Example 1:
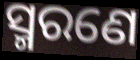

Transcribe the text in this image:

ସ୍ମରଣେ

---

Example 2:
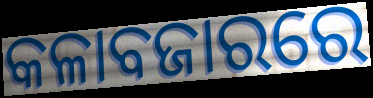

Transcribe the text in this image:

କଳାବଜାରରେ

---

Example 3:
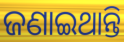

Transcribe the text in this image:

ଜଣାଇଥାନ୍ତି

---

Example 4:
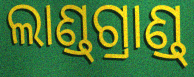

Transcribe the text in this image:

ଲାଣ୍ଡ୍‍ଗ୍ରାଣ୍ଡ୍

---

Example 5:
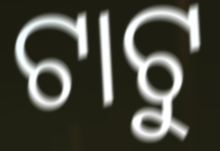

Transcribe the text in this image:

ଟାଟୁ